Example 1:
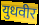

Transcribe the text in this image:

युधवीर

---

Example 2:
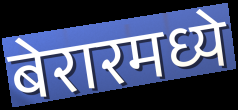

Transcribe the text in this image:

बेरारमध्ये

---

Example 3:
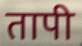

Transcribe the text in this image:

तापी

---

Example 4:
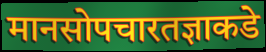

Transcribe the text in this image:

मानसोपचारतज्ञाकडे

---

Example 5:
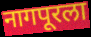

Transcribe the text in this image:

नागपूरला